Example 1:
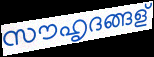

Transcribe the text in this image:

സൗഹൃദങ്ങള്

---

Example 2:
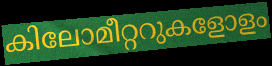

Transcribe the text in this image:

കിലോമീറ്ററുകളോളം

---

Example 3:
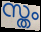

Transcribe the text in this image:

സ്തം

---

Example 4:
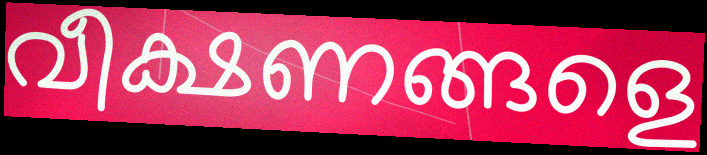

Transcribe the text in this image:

വീക്ഷണങ്ങളെ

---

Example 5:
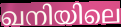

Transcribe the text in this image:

ഖനിയിലെ